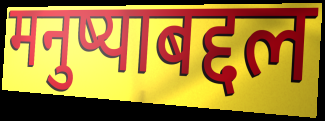
मनुष्याबद्दल